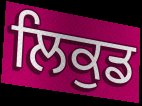
ਲਿਕੁਡ